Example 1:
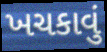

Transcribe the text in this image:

ખચકાવું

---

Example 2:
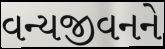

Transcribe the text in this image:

વન્યજીવનને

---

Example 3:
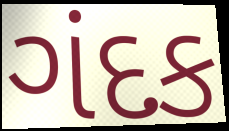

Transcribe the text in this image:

ગંદક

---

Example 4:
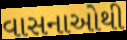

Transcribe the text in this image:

વાસનાઓથી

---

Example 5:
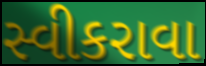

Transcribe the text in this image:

સ્વીકરાવા